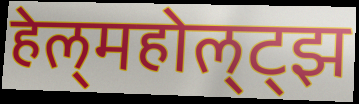
हेल्महोल्ट्झ